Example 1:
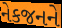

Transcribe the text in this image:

નેકજનને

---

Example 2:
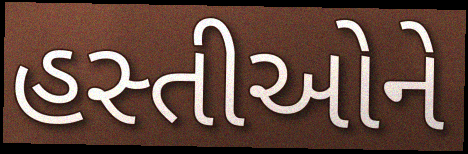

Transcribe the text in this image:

હસ્તીઓને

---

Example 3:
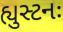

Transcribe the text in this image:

હ્યુસ્ટનઃ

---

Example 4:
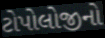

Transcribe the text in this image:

ટોપોલોજીનો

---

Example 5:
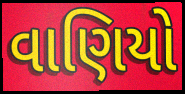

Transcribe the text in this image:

વાણિયો